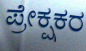
ಪ್ರೇಕ್ಷಕರ